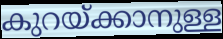
കുറയ്ക്കാനുള്ള